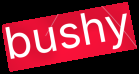
bushy